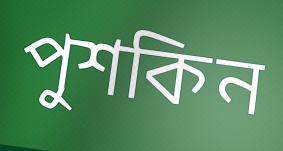
পুশকিন